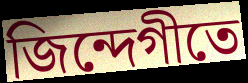
জিন্দেগীতে